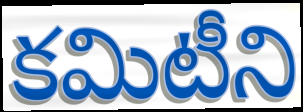
కమిటీని